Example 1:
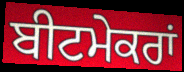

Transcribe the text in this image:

ਬੀਟਮੇਕਰਾਂ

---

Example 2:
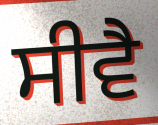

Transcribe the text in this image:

ਸੀਵੈ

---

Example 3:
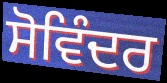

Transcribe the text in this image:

ਸੋਵਿੰਦਰ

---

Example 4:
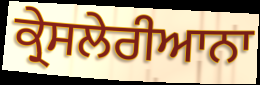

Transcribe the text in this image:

ਕ੍ਰੇਸਲੇਰੀਆਨਾ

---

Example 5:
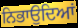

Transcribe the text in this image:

ਨਿਭਾਉਦਿਆਂ